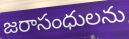
జరాసంధులను